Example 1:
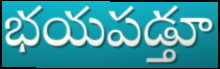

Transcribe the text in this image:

భయపడ్తూ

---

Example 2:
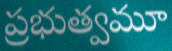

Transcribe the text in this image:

ప్రభుత్వమూ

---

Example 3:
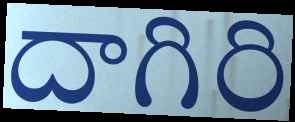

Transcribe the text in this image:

దాగిరి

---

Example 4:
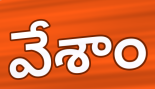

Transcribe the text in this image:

వేశాం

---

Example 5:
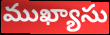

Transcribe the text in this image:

ముఖ్యాసు